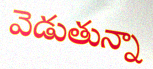
వెడుతున్నా